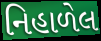
નિહાળેલ